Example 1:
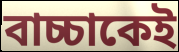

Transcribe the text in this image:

বাচ্চাকেই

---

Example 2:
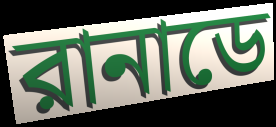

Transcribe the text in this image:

রানাডে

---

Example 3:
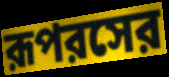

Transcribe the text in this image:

রূপরসের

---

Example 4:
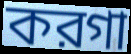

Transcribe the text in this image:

করগা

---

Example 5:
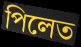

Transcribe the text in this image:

পিলেত